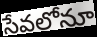
సేవలోనూ